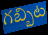
గబ్బిట